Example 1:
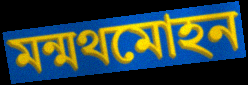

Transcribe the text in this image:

মন্মথমোহন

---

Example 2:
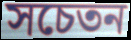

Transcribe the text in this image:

সচেতন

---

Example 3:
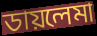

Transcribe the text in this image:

ডায়লেমা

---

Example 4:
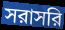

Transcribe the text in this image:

সরাসরি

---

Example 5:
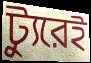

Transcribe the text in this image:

ট্যুরেই